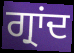
ਗ੍ਰਾਂਦ